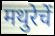
मथुरेचें